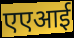
एएआई